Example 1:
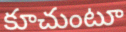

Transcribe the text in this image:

కూచుంటూ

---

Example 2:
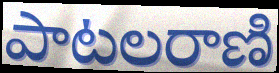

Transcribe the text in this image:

పాటలరాణి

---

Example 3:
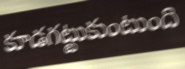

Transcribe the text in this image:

కూడగట్టుకుంటుంది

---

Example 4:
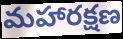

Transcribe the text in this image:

మహారక్షణ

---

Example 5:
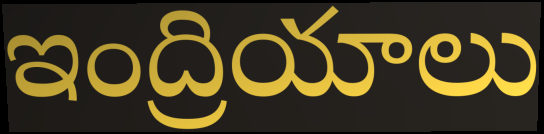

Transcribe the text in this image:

ఇంద్రియాలు